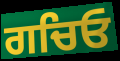
ਗਚਿਓ